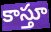
కాస్తూ